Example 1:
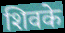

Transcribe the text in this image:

शिवके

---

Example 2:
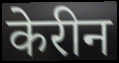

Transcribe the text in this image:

केरीन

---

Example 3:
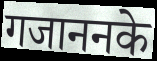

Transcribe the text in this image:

गजाननके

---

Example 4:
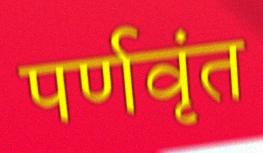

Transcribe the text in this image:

पर्णवृंत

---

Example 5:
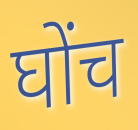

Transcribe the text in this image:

घोंच